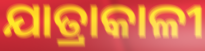
ଯାତ୍ରାକାଳୀ